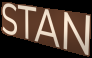
STAN